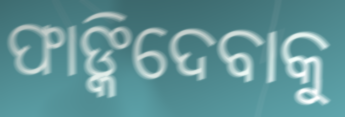
ଫାଙ୍କିଦେବାକୁ